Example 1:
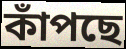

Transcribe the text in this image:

কাঁপছে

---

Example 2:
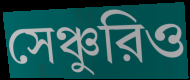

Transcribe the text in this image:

সেঞ্চুরিও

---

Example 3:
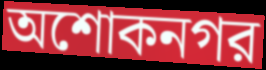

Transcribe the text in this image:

অশোকনগর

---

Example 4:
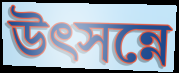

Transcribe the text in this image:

উৎসন্নে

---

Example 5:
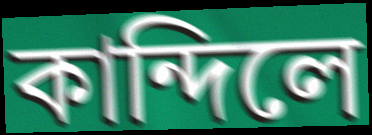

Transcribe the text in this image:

কান্দিলে